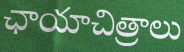
ఛాయాచిత్రాలు